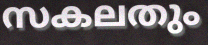
സകലതും